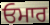
ਓਮਾਰ